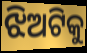
ଝିଅଟିକୁ